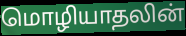
மொழியாதலின்